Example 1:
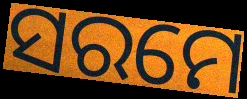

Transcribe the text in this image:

ସରମେ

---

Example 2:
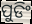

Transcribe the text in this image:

ପୁଡିଂ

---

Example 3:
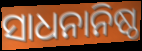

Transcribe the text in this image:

ସାଧନାନିଷ୍ଠ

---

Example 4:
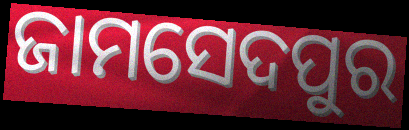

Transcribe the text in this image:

ଜାମସେଦପୁର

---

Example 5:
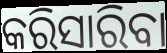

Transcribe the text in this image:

କରିସାରିବା